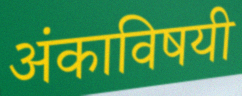
अंकाविषयी